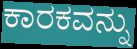
ಕಾರಕವನ್ನು